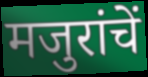
मजुरांचें